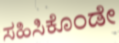
ಸಹಿಸಿಕೊಂಡೇ